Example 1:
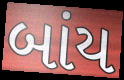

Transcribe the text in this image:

બાંય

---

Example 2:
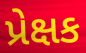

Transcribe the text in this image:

પ્રેક્ષક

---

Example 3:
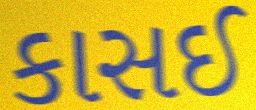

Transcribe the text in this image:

કાસઈ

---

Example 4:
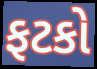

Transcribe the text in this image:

ફટકો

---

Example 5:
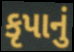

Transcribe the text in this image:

કૃપાનું